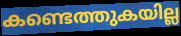
കണ്ടെത്തുകയില്ല